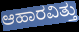
ಆಹಾರವಿತ್ತು